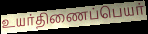
உயர்திணைப்பெயர்